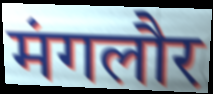
मंगलौर